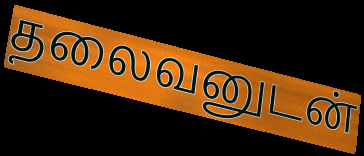
தலைவனுடன்